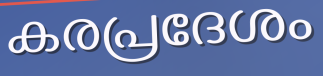
കരപ്രദേശം